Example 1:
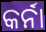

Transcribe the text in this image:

କର୍ନା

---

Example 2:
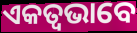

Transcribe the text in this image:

ଏକତ୍ଵଭାବେ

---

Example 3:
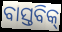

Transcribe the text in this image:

ବାସ୍ତବିକ୍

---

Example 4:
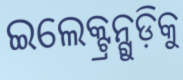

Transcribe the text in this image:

ଇଲେକ୍ଟ୍ରନ୍ଗୁଡ଼ିକୁ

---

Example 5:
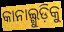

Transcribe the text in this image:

କାନାଲ୍ଗୁଡ଼ିକୁ